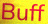
Buff